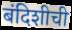
बंदिशीची